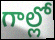
గాల్లో